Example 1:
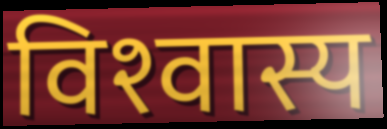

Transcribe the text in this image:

विश्वास्य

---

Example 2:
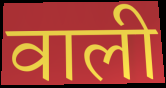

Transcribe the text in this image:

वाली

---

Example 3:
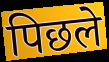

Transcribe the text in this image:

पिछले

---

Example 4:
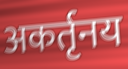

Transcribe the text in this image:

अकर्तृनय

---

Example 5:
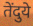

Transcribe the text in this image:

तेंदुये